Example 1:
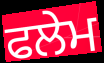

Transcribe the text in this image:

ਫਲੇਮ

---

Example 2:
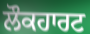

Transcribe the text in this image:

ਲੌਕਹਾਰਟ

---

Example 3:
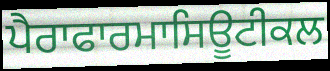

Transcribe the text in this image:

ਪੈਰਾਫਾਰਮਾਸਿਊਟੀਕਲ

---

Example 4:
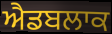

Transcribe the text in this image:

ਐਡਬਲਾਕ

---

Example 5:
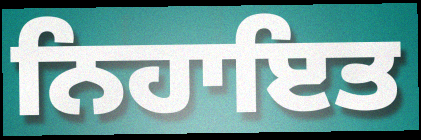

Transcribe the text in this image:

ਨਿਹਾਇਤ